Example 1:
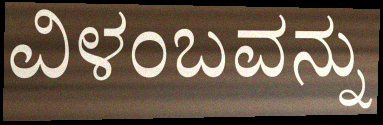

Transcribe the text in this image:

ವಿಳಂಬವನ್ನು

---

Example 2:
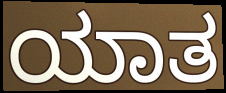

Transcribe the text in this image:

ಯಾತ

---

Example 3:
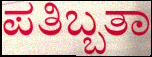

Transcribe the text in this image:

ಪತಿಬ್ಬತಾ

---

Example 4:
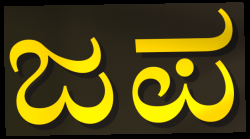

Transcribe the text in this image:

ಜಪ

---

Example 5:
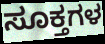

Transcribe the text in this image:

ಸೂಕ್ತಗಳ